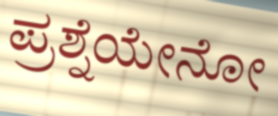
ಪ್ರಶ್ನೆಯೇನೋ